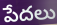
పేదలు